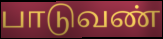
பாடுவண்